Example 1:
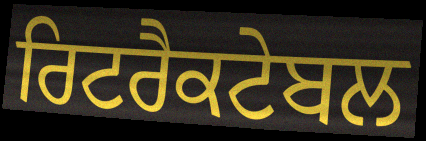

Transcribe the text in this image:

ਰਿਟਰੈਕਟੇਬਲ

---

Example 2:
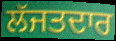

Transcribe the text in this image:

ਲੱਜਤਦਾਰ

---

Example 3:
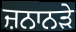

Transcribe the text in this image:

ਜ਼ਨਾਨੜੇ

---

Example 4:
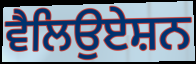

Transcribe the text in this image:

ਵੈਲਿਉਏਸ਼ਨ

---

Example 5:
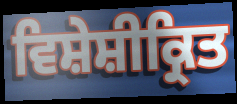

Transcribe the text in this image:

ਵਿਸ਼ੇਸ਼ੀਕ੍ਰਿਤ